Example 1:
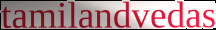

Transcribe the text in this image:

tamilandvedas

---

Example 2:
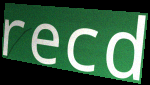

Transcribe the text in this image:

recd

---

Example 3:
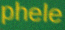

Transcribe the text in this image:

phele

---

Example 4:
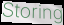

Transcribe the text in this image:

Storing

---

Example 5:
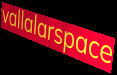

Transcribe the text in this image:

vallalarspace